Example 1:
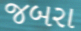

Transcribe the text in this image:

જબરા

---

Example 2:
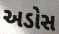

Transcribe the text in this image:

અડોસ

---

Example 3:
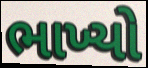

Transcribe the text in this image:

ભાખ્યો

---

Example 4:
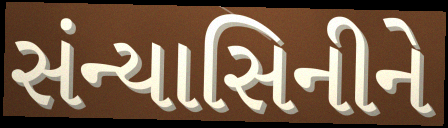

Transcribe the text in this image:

સંન્યાસિનીને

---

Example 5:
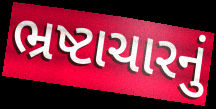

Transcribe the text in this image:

ભ્રષ્ટાચારનું